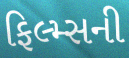
ફિલ્મ્સની